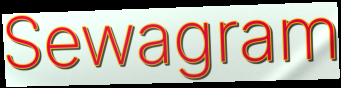
Sewagram